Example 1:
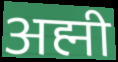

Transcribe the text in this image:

अह्मी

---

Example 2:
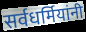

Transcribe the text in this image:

सर्वधर्मियांनी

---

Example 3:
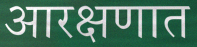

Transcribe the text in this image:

आरक्षणात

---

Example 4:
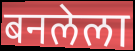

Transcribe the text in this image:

बनलेला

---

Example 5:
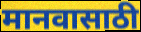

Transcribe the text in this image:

मानवासाठी